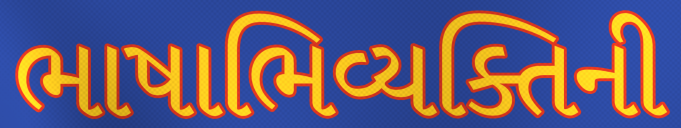
ભાષાભિવ્યક્તિની